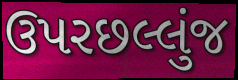
ઉપરછલ્લુંજ